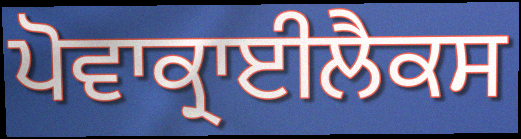
ਪੋਵਾਕ੍ਰਾਈਲੈਕਸ